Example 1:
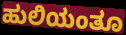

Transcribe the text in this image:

ಹುಲಿಯಂತೂ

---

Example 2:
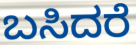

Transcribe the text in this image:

ಬಸಿದರೆ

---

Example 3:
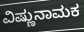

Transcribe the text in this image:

ವಿಷ್ಣುನಾಮಕ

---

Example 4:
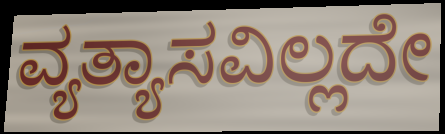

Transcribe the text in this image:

ವ್ಯತ್ಯಾಸವಿಲ್ಲದೇ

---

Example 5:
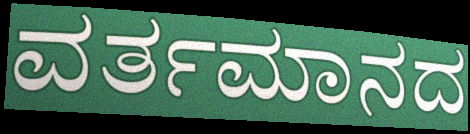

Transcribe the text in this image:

ವರ್ತಮಾನದ